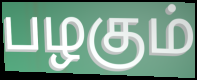
பழகும்